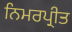
ਨਿਮਰਪ੍ਰੀਤ